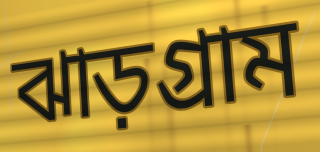
ঝাড়গ্রাম